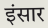
इंसार